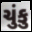
ચુંકુ